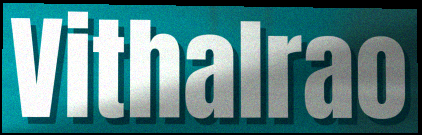
Vithalrao